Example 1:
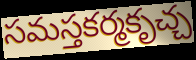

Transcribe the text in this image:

సమస్తకర్మకృచ్చ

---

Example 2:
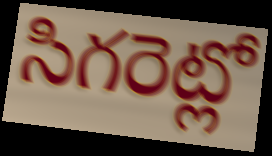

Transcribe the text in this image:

సిగరెట్లో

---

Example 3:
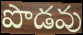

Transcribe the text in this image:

పొడవు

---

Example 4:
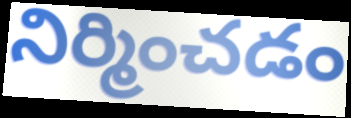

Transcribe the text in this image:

నిర్మించడం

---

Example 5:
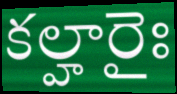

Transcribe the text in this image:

కల్హారైః